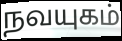
நவயுகம்